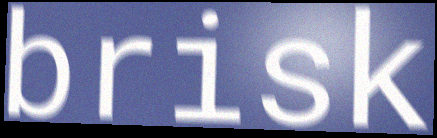
brisk